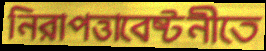
নিরাপত্তাবেষ্টনীতে